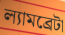
ল্যামব্রেটা